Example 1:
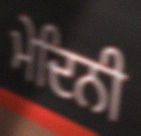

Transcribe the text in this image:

ਮੇਦਿਨੀ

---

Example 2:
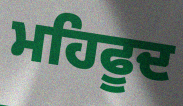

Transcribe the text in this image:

ਮਹਿਫੂਦ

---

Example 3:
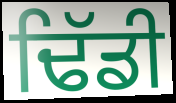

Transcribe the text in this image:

ਢਿੱਡੀ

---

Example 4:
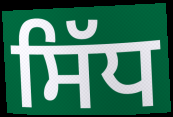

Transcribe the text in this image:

ਸਿੱਧ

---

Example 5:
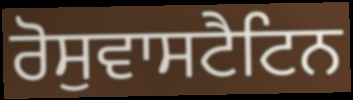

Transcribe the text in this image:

ਰੋਸੁਵਾਸਟੈਟਿਨ